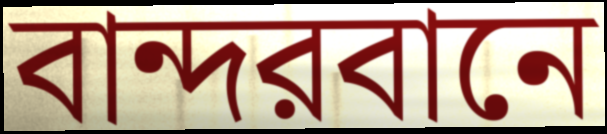
বান্দরবানে